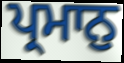
ਪ੍ਰਮਾਨੁ